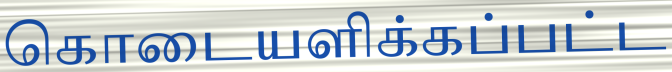
கொடையளிக்கப்பட்ட